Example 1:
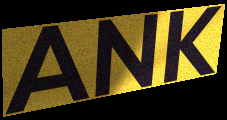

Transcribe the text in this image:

ANK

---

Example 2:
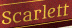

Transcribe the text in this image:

Scarlett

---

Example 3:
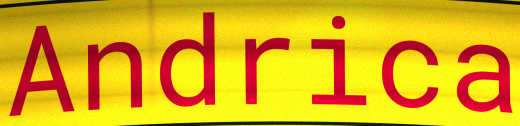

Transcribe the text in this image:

Andrica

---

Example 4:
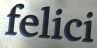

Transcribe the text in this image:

felici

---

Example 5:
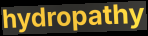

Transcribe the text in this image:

hydropathy